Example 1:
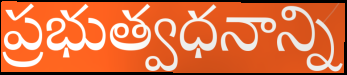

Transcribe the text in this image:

ప్రభుత్వధనాన్ని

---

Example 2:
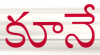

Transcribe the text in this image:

కూనే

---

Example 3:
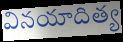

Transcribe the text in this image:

వినయాదిత్య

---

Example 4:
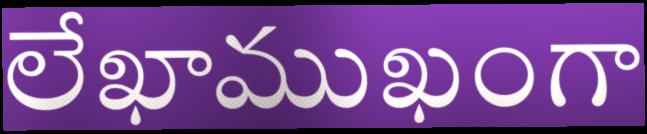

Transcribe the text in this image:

లేఖాముఖంగా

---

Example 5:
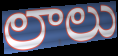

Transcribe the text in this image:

లాలు